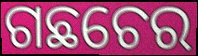
ଗଛଚେର